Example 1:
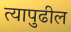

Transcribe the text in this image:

त्यापुढील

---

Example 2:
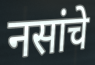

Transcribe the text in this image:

नसांचे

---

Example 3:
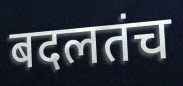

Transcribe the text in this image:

बदलतंच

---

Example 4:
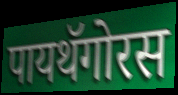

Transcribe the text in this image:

पायथॅगोरस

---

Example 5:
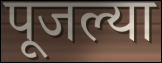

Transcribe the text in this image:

पूजल्या